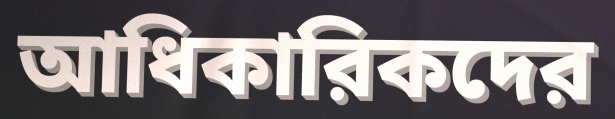
আধিকারিকদের